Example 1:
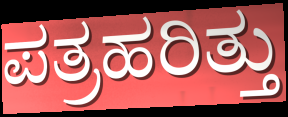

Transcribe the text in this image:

ಪತ್ರಹರಿತ್ತು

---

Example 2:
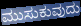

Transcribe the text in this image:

ಮುಸುಕುವುದು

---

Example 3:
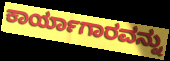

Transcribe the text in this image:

ಕಾರ್ಯಾಗಾರವನ್ನು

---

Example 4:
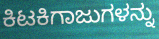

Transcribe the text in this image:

ಕಿಟಕಿಗಾಜುಗಳನ್ನು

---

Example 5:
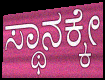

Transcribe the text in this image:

ಸ್ಥಾನಕ್ಕೇ